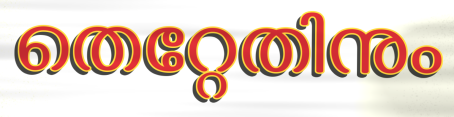
തെറ്റേതിനും